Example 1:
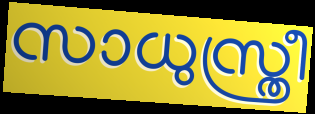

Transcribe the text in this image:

സാധുസ്ത്രീ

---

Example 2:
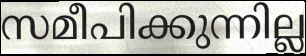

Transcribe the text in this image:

സമീപിക്കുന്നില്ല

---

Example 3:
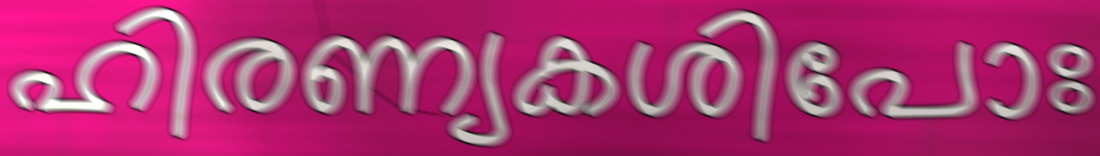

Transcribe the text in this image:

ഹിരണ്യകശിപോഃ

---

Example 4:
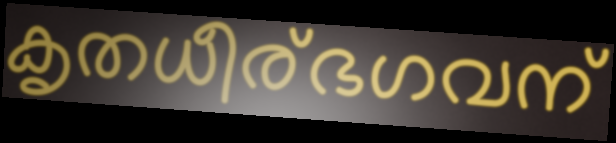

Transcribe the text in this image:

കൃതധീര്ഭഗവന്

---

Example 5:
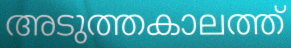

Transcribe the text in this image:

അടുത്തകാലത്ത്